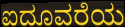
ಐದೂವರೆಯ